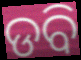
ଡବି